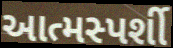
આત્મસ્પર્શી